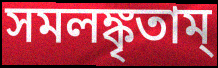
সমলঙ্কৃতাম্